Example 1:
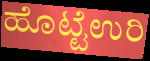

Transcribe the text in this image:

ಹೊಟ್ಟೆಉರಿ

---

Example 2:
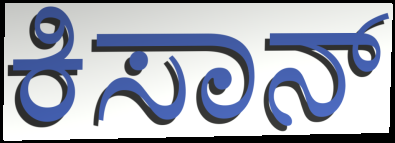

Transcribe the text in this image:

ಕಿಸಾನ್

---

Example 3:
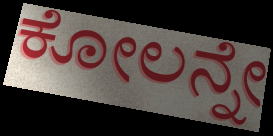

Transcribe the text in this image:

ಕೋಲನ್ನೇ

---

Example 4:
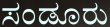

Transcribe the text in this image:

ಸಂಡೂರು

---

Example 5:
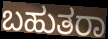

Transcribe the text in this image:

ಬಹುತರಾ